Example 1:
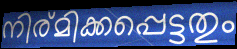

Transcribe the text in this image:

നിര്മിക്കപ്പെട്ടതും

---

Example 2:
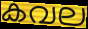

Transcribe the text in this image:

കവല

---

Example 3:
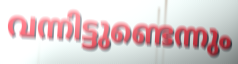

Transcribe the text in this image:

വന്നിട്ടുണ്ടെന്നും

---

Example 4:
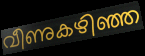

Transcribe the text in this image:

വീണുകഴിഞ്ഞ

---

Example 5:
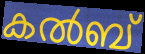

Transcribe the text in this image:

കൽബ്